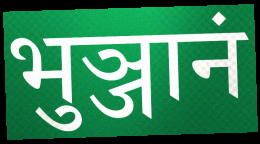
भुञ्जानं